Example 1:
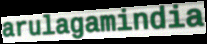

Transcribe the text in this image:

arulagamindia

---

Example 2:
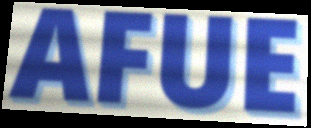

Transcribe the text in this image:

AFUE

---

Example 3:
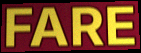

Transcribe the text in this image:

FARE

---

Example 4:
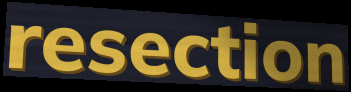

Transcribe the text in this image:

resection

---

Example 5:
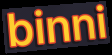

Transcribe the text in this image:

binni